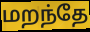
மறந்தே